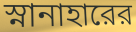
স্নানাহারের